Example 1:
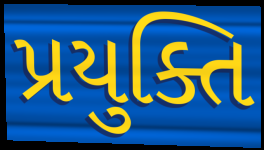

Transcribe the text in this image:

પ્રયુક્તિ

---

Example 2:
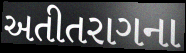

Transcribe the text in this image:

અતીતરાગના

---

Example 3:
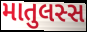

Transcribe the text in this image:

માતુલસ્સ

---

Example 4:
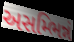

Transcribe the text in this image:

અસમ્ભિન્નં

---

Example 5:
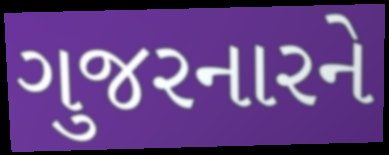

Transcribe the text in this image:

ગુજરનારને